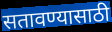
सतावण्यासाठी